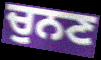
ਚੁਨਣ